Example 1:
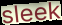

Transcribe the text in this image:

sleek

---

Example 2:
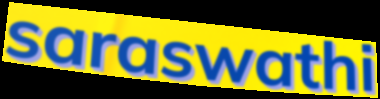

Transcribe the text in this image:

saraswathi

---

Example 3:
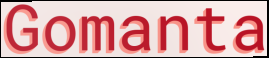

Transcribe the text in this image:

Gomanta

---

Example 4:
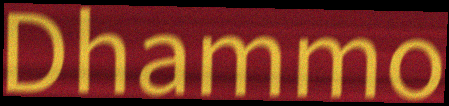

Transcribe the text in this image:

Dhammo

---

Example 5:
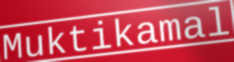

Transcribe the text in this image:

Muktikamal